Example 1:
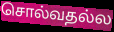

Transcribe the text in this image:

சொல்வதல்ல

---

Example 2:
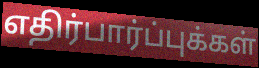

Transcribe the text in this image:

எதிர்பார்ப்புக்கள்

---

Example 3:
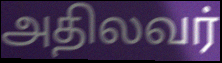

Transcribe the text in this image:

அதிலவர்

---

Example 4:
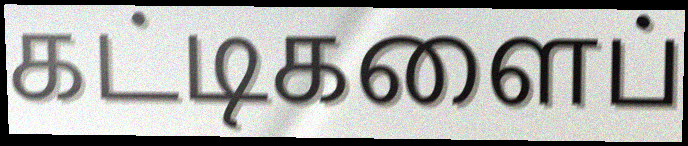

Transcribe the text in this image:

கட்டிகளைப்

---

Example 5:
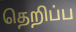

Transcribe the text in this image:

தெறிப்ப